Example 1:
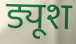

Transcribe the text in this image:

ड्यूश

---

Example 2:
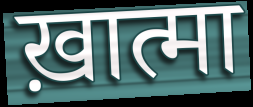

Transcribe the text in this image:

ख़ात्मा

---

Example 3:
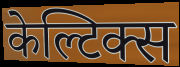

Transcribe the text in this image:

केल्टिक्स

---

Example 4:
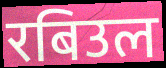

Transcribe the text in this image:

रबिउल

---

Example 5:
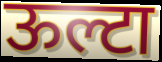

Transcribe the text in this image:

ऊल्टा